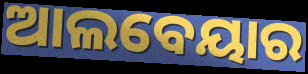
ଆଲବେୟାର